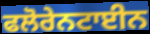
ਫਲੋਰੇਨਟਾਈਨ